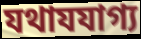
যথাযযাগ্য